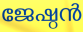
ജേഷ്ഠൻ